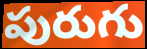
పురుగు